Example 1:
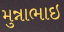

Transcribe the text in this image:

મુન્નાભાઇ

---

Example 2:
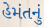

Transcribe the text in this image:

હેમંતનું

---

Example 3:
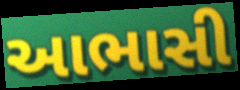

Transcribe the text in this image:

આભાસી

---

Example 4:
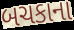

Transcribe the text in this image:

બચકાના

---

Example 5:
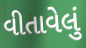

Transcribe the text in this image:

વીતાવેલું